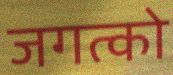
जगत्को